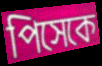
পিসেকে